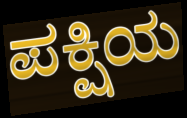
ಪಕ್ಷಿಯ